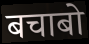
बचाबो